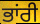
ਭਾਂਰੀ